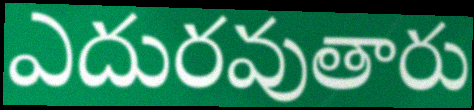
ఎదురవుతారు